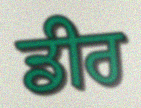
ਡੀਰ